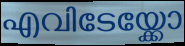
എവിടേയ്ക്കോ